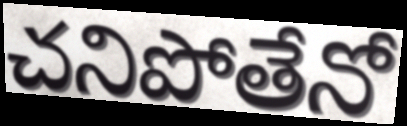
చనిపోతేనో